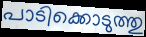
പാടിക്കൊടുത്തു